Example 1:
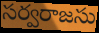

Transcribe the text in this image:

సర్వరాజసు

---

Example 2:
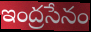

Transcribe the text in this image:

ఇంద్రసేనం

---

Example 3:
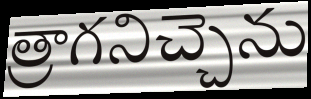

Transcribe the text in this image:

త్రాగనిచ్చెను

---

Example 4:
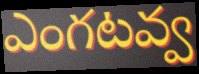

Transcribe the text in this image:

ఎంగటవ్వ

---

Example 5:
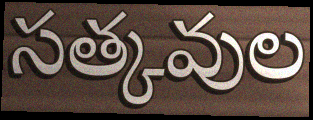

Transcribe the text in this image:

సత్కవుల